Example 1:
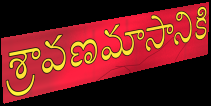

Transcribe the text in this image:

శ్రావణమాసానికి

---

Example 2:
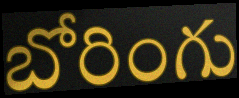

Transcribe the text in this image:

బోరింగు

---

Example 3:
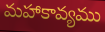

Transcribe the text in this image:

మహాకావ్యము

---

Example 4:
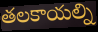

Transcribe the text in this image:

తలకాయల్ని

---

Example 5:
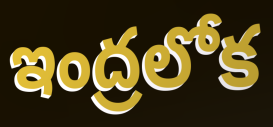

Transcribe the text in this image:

ఇంద్రలోక